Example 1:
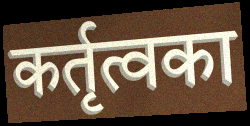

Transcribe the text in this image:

कर्तृत्वका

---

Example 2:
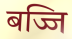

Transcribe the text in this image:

बज्जि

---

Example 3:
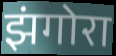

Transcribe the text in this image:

झंगोरा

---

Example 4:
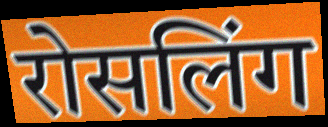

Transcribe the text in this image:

रोसलिंग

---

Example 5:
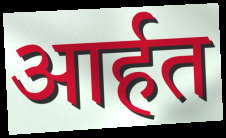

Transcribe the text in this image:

आर्हत